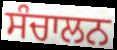
ਸੰਚਾਲਨ